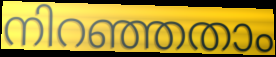
നിറഞ്ഞതാം